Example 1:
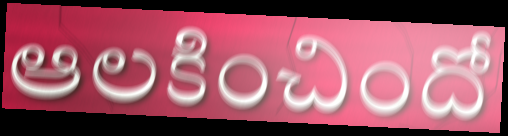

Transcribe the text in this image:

ఆలకించిందో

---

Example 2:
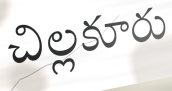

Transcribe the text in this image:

చిల్లకూరు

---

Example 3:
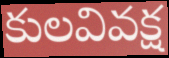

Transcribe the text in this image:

కులవివక్ష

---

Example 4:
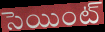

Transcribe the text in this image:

సెయింట్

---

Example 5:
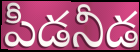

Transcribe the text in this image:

పీడనీడ